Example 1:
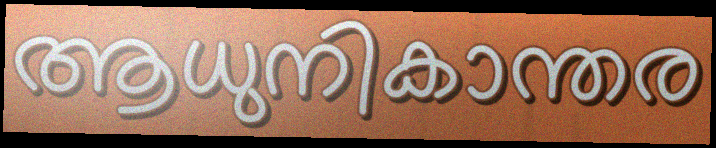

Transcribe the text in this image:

ആധുനികാന്തര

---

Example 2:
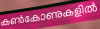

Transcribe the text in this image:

കൺകോണുകളിൽ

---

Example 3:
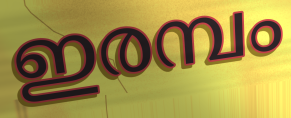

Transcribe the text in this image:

ഇരമ്പം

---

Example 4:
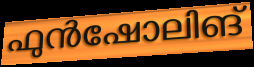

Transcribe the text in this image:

ഫുൻഷോലിങ്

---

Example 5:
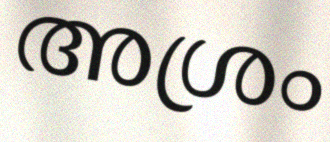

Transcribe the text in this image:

അശ്രം